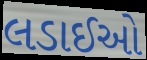
લડાઈઓ